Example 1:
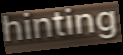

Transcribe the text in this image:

hinting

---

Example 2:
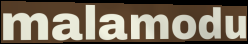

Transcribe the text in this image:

malamodu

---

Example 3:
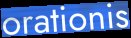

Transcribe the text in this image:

orationis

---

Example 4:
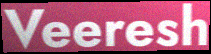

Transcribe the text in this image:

Veeresh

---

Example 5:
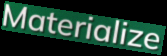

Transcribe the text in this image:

Materialize